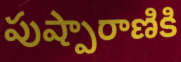
పుష్పారాణికి